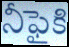
నీఫైకి